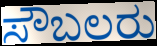
ಸೌಬಲರು